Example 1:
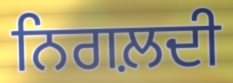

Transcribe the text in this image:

ਨਿਗਲ਼ਦੀ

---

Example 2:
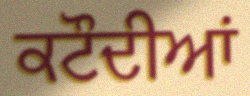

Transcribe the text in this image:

ਕਟੌਦੀਆਂ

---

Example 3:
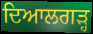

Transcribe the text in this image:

ਦਿਆਲਗੜ੍ਹ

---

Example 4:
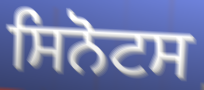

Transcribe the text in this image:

ਸਿਨੋਟਸ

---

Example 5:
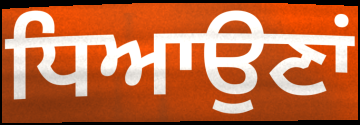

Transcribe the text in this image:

ਧਿਆਉਣਾਂ